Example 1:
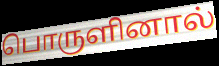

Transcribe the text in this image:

பொருளினால்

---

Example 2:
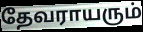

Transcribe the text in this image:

தேவராயரும்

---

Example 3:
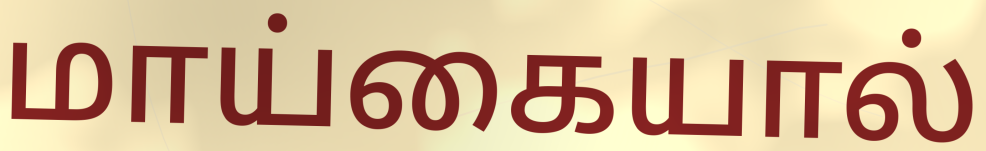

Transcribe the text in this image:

மாய்கையால்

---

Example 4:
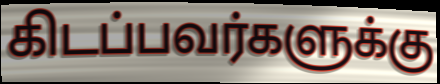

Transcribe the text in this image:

கிடப்பவர்களுக்கு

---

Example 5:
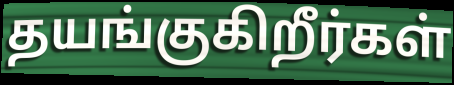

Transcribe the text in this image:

தயங்குகிறீர்கள்